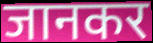
जानकर